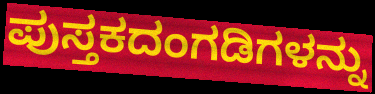
ಪುಸ್ತಕದಂಗಡಿಗಳನ್ನು